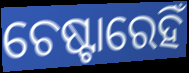
ଚେଷ୍ଟାରେହିଁ